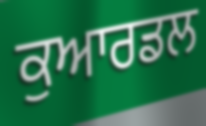
ਕੁਆਰਡਲ